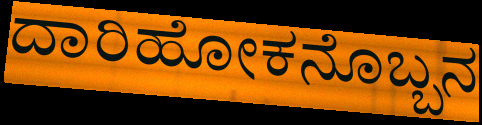
ದಾರಿಹೋಕನೊಬ್ಬನ